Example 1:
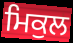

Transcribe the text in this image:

ਮਿਕੁਲ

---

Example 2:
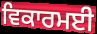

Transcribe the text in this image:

ਵਿਕਾਰਮਈ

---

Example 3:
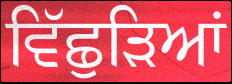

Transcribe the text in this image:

ਵਿੱਛੁੜਿਆਂ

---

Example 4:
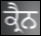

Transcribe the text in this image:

ਕ੍ਰੈਨ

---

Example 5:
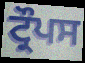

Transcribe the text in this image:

ਟ੍ਰੌਪਸ